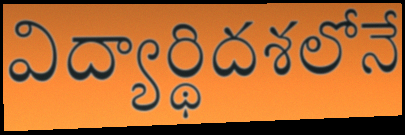
విద్యార్థిదశలోనే